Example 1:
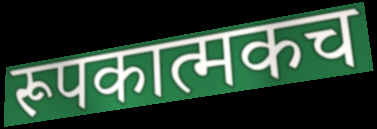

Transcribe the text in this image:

रूपकात्मकच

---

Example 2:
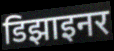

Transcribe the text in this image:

डिझाइनर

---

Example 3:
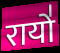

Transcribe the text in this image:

रायो॑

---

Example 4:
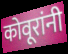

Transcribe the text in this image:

कोवूरांनी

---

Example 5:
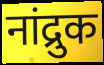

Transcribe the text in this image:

नांद्रुक